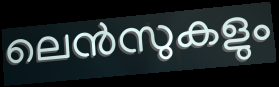
ലെൻസുകളും